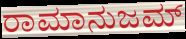
ರಾಮಾನುಜಮ್